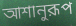
আশানুরূপ